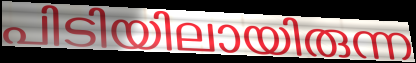
പിടിയിലായിരുന്ന